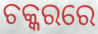
ଚକ୍କରରେ